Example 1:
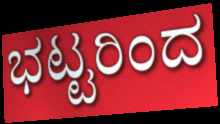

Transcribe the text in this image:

ಭಟ್ಟರಿಂದ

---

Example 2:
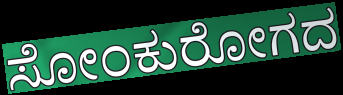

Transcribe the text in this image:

ಸೋಂಕುರೋಗದ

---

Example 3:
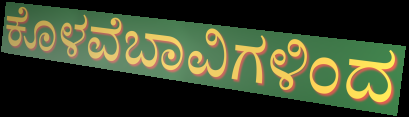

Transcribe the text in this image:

ಕೊಳವೆಬಾವಿಗಳಿಂದ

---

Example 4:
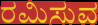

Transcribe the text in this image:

ರಮಿಸುವ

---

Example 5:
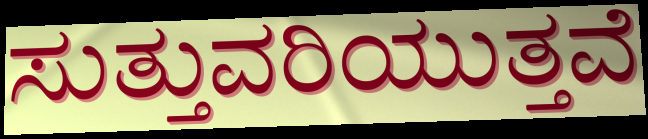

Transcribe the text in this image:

ಸುತ್ತುವರಿಯುತ್ತವೆ